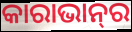
କାରାଭାନ୍‍ର